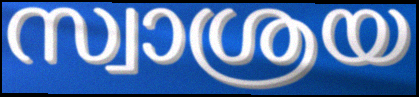
സ്വാശ്രയ